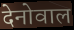
देनोवाल